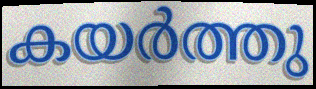
കയർത്തു